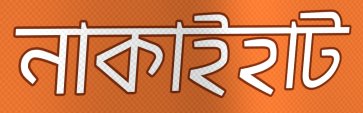
নাকাইহাট